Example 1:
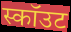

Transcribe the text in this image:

स्कॉउट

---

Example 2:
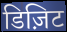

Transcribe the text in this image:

डिज़िट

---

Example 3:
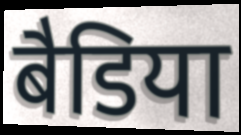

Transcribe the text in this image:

बैडिया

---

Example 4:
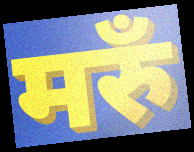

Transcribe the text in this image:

मरुँ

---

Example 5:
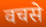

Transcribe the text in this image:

वचसे